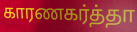
காரணகர்த்தா